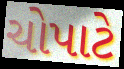
ચોપાટે